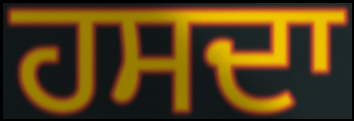
ਹਸਦਾ